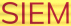
SIEM